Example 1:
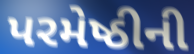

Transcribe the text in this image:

પરમેષ્ઠીની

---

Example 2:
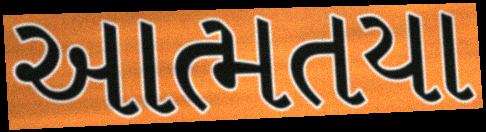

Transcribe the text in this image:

આત્મતયા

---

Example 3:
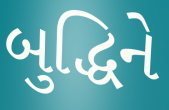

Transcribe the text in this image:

બુદ્ધિને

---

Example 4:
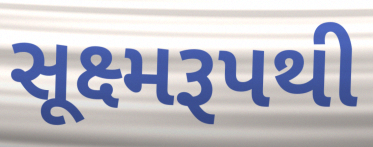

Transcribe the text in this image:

સૂક્ષ્મરૂપથી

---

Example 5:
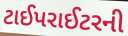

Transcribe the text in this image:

ટાઈપરાઈટરની